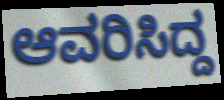
ಆವರಿಸಿದ್ದ